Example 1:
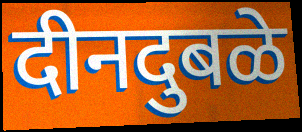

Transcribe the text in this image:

दीनदुबळे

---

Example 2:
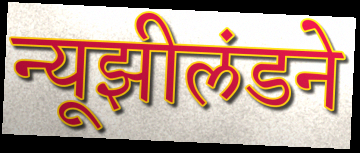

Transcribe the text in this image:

न्यूझीलंडने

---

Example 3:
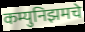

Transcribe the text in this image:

कम्युनिझमचे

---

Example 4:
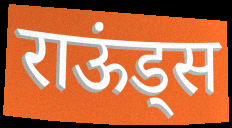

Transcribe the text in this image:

राऊंड्स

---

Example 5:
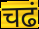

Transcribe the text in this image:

चढं